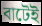
বাটেই